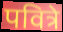
पवित्रे